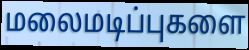
மலைமடிப்புகளை